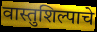
वास्तुशिल्पाचे